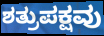
ಶತ್ರುಪಕ್ಷವು